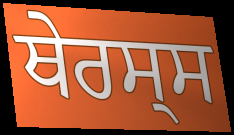
ਥੇਰਸ੍ਸ